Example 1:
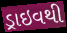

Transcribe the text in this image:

ડ્રાઇવથી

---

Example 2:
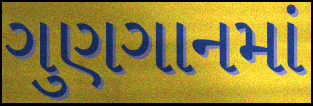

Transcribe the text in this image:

ગુણગાનમાં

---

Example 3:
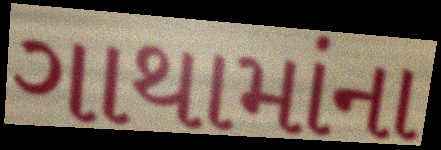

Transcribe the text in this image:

ગાથામાંના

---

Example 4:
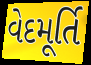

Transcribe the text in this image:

વેદમૂર્તિ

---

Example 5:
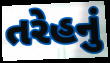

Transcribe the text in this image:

તરેહનું